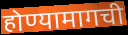
होण्यामागची